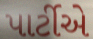
પાર્ટીએ